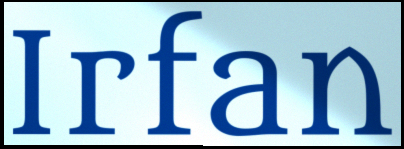
Irfan